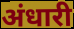
अंधारी